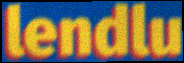
lendlu